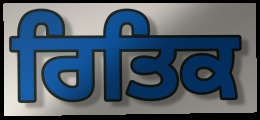
ਰਿਤਿਕ